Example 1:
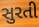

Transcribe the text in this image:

સુરતી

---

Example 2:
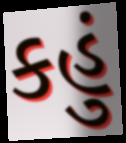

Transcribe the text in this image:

કહું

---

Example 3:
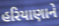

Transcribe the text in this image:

હરિયાણાને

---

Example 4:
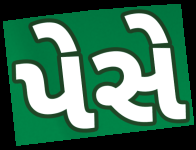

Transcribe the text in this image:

પેસે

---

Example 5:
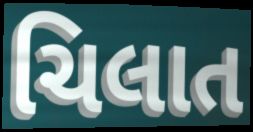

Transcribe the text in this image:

ચિલાત